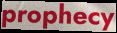
prophecy